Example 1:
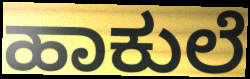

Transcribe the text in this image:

ಹಾಕುಲೆ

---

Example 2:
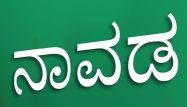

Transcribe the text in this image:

ನಾವಡ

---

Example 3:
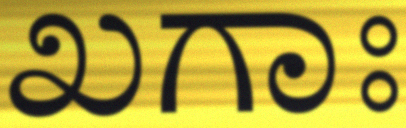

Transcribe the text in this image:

ಖಗಾಃ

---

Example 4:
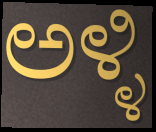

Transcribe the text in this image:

ಅಳ್ಳಿ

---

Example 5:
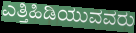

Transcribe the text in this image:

ಎತ್ತಿಹಿಡಿಯುವವರು